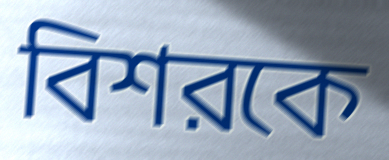
বিশরকে